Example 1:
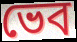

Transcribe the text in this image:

ভেব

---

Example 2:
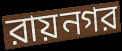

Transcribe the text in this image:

রায়নগর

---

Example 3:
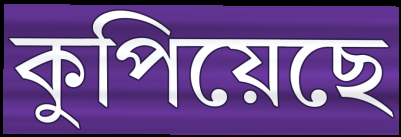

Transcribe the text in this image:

কুপিয়েছে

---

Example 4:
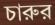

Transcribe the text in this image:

চারুর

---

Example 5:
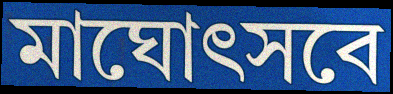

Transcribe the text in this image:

মাঘোৎসবে